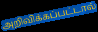
அறிவிக்கப்பட்டால்